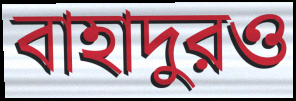
বাহাদুরও